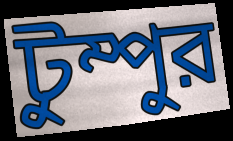
টুম্পুর